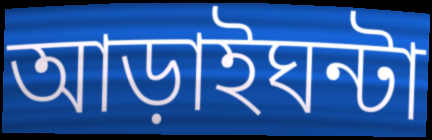
আড়াইঘন্টা